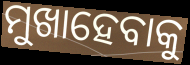
ମୁଖାହେବାକୁ